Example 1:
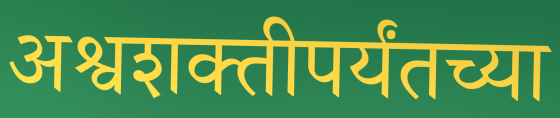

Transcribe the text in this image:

अश्वशक्तीपर्यंतच्या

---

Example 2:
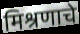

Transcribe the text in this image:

मिश्रणाचे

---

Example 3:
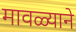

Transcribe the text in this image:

मावळ्याने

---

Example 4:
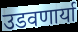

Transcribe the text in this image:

उडवणार्या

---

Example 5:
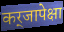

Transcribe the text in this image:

कर्जापेक्षा